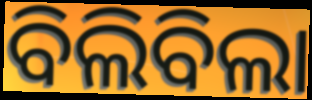
ବିଲିବିଲା